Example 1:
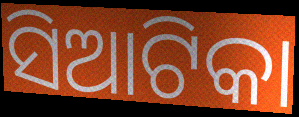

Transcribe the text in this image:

ସିଆଟିକା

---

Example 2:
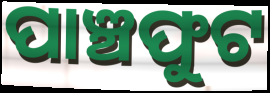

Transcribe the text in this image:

ପାଞ୍ଚଫୁଟ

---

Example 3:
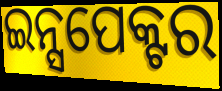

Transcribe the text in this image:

ଇନ୍ସପେକ୍ଟର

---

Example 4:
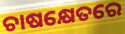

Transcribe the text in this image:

ଚାଷକ୍ଷେତରେ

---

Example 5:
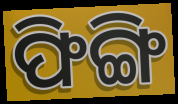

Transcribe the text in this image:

ଫିଙ୍ଗି